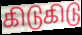
கிடுகிடு